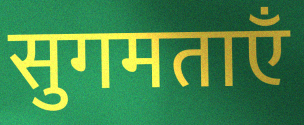
सुगमताएँ